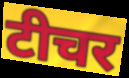
टीचर